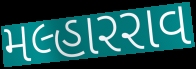
મલ્હારરાવ